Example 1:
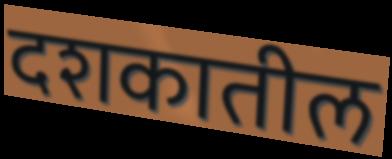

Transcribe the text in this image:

दशकातील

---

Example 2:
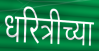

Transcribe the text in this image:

धरित्रीच्या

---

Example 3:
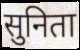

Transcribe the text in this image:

सुनिता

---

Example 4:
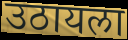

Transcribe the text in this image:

उठायला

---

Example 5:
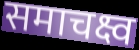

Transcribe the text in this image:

समाचक्ष्व